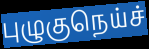
புழுகுநெய்ச்